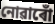
নোৱাৰোঁ